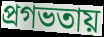
প্রগভতায়